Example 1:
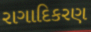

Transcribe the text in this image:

રાગાદિકરણ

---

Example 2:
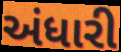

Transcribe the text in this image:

અંધારી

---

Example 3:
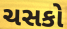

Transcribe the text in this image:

ચસકો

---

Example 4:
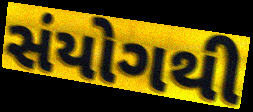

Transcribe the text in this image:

સંયોગથી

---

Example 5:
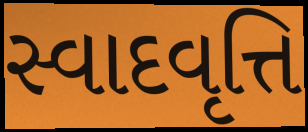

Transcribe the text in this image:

સ્વાદવૃત્તિ